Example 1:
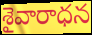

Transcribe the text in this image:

శైవారాధన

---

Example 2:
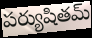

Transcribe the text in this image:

పర్యుషితమ్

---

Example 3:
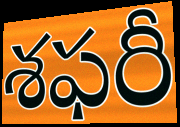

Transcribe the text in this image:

శఫరీ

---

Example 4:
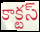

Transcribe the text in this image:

కాక్టస్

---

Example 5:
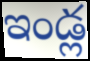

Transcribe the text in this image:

ఇండ్ల